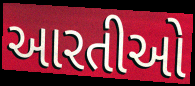
આરતીઓ